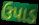
ઉપાડ